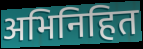
अभिनिहित